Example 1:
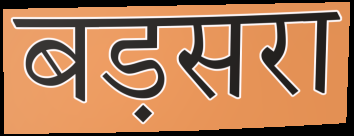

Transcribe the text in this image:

बड़सरा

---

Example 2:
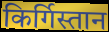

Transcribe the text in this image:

किर्गिस्तान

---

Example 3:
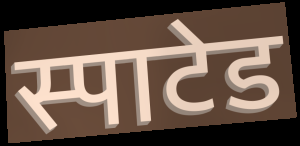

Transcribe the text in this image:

स्पाटेड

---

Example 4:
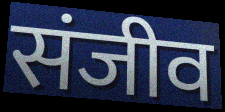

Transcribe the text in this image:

संजीव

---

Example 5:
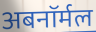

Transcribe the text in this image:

अबनॉर्मल